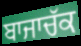
ਬਾਜਾਚੱਕ